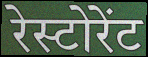
रेस्‍टोरेंट